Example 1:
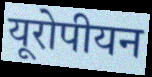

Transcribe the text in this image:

यूरोपीयन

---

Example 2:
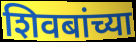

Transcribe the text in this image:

शिवबांच्या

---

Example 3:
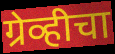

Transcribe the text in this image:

ग्रेव्हीचा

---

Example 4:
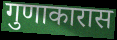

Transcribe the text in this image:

गुणाकारास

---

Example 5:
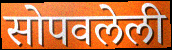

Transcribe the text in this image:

सोपवलेली